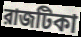
রাজটিকা